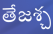
తేజశ్చ